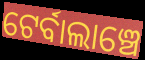
ଟେର୍ବାଲାଞ୍ଚେ